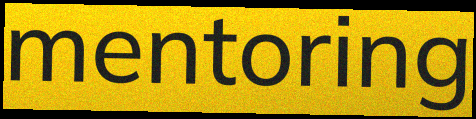
mentoring